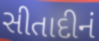
સીતાદીનં